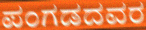
ಪಂಗಡದವರ